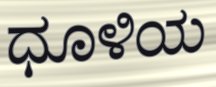
ಧೂಳಿಯ